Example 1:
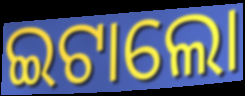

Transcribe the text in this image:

ଇଟାଲୋ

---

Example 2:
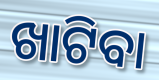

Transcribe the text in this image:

ଖାଟିବା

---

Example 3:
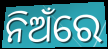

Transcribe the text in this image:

ନିଅଁରେ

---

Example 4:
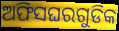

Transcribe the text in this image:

ଅଫିସଘରଗୁଡିକ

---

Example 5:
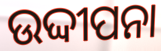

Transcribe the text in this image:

ଉଦ୍ଦୀପନା